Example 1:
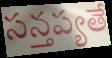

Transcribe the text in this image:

సన్తప్యతే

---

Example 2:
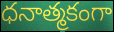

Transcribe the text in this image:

ధనాత్మకంగా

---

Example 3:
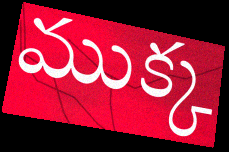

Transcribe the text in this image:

ముక్క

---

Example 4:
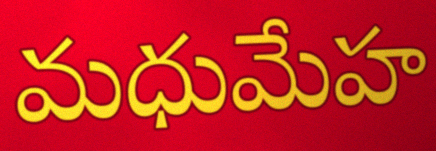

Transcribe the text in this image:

మధుమేహ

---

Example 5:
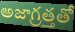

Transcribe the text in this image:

అజాగ్రత్తతో